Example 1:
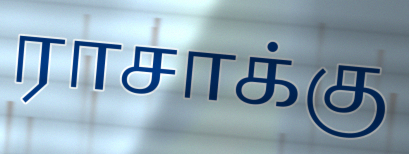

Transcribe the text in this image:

ராசாக்கு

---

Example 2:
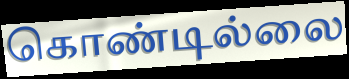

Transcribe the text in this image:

கொண்டில்லை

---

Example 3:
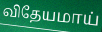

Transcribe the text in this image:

விதேயமாய்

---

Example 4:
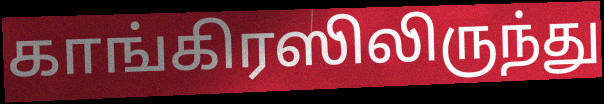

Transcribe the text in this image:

காங்கிரஸிலிருந்து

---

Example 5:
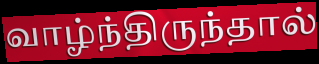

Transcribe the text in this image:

வாழ்ந்திருந்தால்